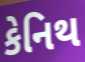
કેનિથ